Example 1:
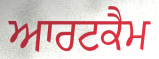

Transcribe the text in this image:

ਆਰਟਕੈਮ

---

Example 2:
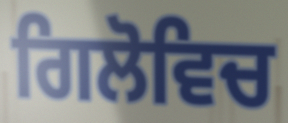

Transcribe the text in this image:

ਗਿਲੋਵਿਚ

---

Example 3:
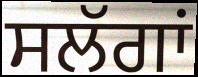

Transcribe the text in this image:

ਸਲੱਗਾਂ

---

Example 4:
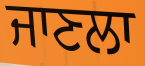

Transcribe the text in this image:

ਜਾਣਲਾ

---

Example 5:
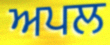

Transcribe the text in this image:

ਅਪਲ